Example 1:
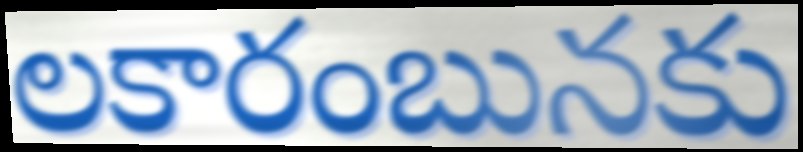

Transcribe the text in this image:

లకారంబునకు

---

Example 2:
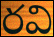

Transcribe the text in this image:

రవి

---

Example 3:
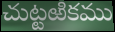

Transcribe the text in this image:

చుట్టఱికము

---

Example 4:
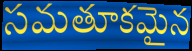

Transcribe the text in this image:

సమతూకమైన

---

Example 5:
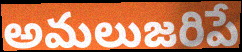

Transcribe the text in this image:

అమలుజరిపే